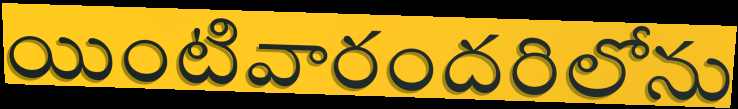
యింటివారందరిలోను